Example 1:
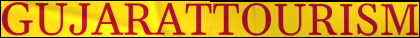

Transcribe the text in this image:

GUJARATTOURISM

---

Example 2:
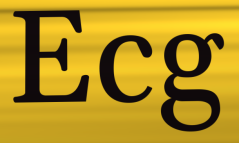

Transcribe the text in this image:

Ecg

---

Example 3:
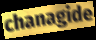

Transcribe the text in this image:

chanagide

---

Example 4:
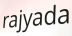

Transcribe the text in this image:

rajyada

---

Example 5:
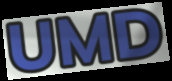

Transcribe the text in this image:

UMD